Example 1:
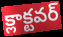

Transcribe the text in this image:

క్లాక్టవర్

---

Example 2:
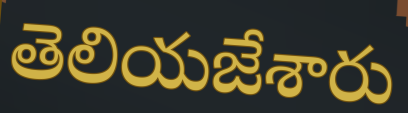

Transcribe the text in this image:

తెలియజేశారు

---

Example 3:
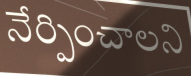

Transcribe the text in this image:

నేర్పించాలని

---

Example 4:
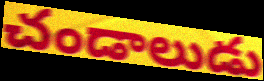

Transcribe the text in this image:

చండాలుడు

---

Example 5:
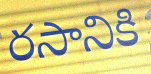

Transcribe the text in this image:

రసానికి